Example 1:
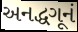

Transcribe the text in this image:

અનદ્ધગૂનં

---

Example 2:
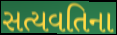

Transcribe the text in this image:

સત્યવતિના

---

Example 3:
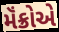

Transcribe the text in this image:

મૅંક્રોએ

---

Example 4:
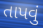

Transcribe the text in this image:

તાપવું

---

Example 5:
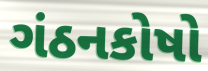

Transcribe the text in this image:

ગંઠનકોષો